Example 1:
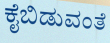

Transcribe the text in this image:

ಕೈಬಿಡುವಂತೆ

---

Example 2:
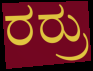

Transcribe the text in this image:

ರರ್ರು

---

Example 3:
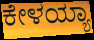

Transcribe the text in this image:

ಕೇಳಯ್ಯಾ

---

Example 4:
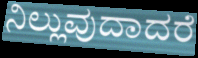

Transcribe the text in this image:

ನಿಲ್ಲುವುದಾದರೆ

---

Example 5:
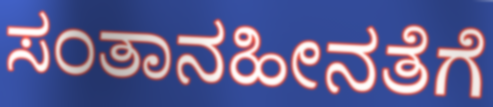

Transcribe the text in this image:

ಸಂತಾನಹೀನತೆಗೆ